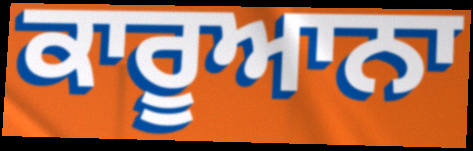
ਕਾਰੂਆਨਾ